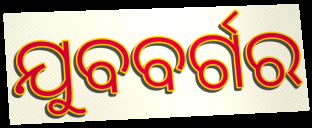
ଯୁବବର୍ଗର